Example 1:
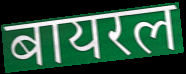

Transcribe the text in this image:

बायरल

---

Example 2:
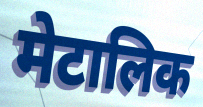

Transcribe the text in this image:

मेटालिक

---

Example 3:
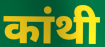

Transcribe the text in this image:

कांथी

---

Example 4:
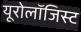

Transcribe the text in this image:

यूरोलॉजिस्ट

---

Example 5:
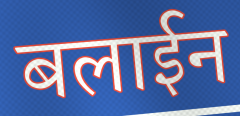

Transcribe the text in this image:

बलाईन